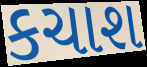
કચાશ